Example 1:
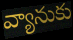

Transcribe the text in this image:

వ్యానుకు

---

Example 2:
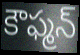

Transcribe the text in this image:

కౌఫ్మన్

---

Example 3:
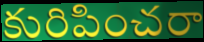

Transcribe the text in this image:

కురిపించరా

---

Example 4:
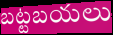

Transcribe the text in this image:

బట్టబయలు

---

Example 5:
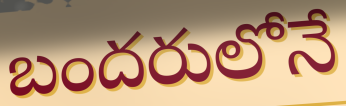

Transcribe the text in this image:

బందరులోనే